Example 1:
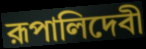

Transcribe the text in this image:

রূপালিদেবী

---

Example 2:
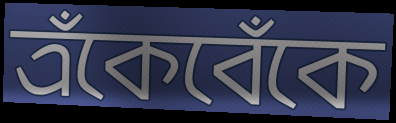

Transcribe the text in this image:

ত্রঁকেবেঁকে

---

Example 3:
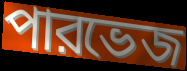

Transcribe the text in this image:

পারভেজ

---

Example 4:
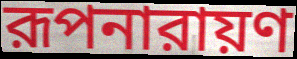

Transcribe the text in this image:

রূপনারায়ণ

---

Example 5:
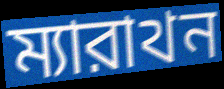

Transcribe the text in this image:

ম্যারাথন